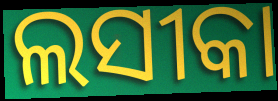
ଲସୀକା